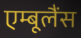
एम्बूलैंस